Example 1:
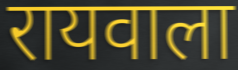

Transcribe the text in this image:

रायवाला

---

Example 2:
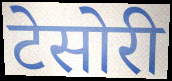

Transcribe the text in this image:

टेसोरी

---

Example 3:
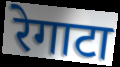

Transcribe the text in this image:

रेगाटा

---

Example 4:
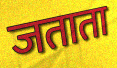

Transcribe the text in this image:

जताता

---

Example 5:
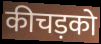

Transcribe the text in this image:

कीचड़को